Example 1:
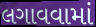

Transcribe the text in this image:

લગાવવામાં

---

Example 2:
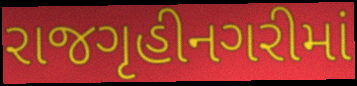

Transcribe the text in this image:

રાજગૃહીનગરીમાં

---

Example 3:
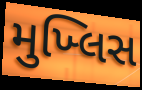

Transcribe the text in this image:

મુખ્લિસ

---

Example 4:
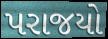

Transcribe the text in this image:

પરાજયો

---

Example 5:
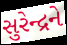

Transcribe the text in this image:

સુરેન્દ્રને